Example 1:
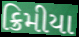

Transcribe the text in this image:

ક્રિમીયા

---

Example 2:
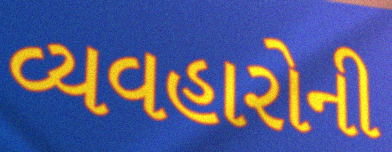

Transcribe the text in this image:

વ્યવહારોની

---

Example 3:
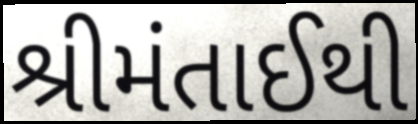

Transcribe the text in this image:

શ્રીમંતાઈથી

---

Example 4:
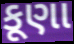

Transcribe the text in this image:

કૂણા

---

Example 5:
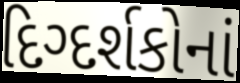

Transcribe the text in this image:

દિગ્દર્શકોનાં